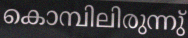
കൊമ്പിലിരുന്നു്